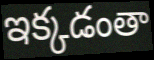
ఇక్కడంతా